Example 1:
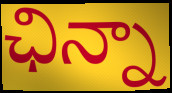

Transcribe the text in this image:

ఛిన్నా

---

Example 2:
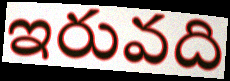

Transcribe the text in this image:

ఇరువది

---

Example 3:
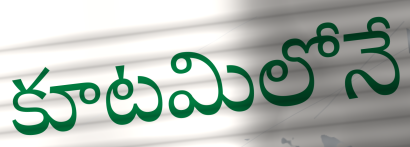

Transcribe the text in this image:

కూటమిలోనే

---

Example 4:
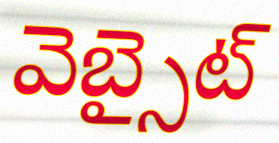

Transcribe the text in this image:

వెబ్సైట్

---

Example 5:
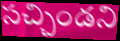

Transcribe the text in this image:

సచ్చిండని